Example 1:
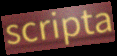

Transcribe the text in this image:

scripta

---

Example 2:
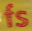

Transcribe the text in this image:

fs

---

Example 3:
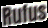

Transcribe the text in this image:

Rufus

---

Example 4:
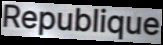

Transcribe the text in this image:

Republique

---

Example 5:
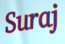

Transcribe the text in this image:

Suraj